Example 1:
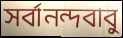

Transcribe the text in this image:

সর্বানন্দবাবু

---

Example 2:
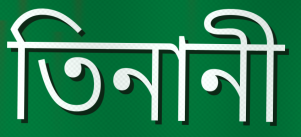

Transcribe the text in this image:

তিনানী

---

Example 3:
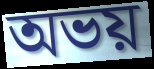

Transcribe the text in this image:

অভয়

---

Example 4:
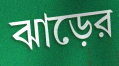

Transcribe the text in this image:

ঝাড়ের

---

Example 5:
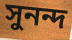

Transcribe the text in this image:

সুনন্দ